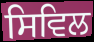
ਸਿਵਿਲ